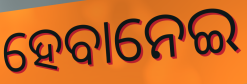
ହେବାନେଇ